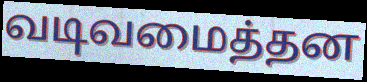
வடிவமைத்தன